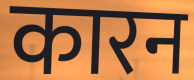
कारन